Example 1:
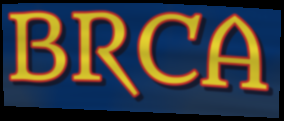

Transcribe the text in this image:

BRCA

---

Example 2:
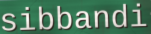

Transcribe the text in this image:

sibbandi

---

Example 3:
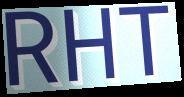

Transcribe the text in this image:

RHT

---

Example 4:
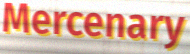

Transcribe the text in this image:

Mercenary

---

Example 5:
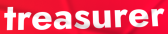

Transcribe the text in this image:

treasurer